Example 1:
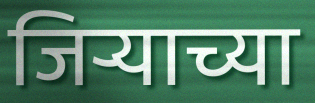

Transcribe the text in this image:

जिऱ्याच्या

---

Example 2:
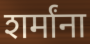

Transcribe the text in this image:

शर्मांना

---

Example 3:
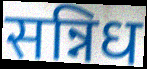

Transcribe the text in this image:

सन्निध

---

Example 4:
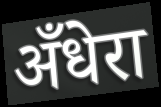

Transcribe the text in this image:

अँधेरा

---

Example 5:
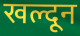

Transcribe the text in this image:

खल्दून